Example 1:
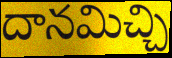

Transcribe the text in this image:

దానమిచ్చి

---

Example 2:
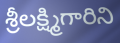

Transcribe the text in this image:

శ్రీలక్ష్మిగారిని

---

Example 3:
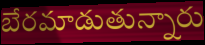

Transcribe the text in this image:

బేరమాడుతున్నారు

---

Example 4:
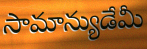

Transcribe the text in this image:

సామాన్యుడేమీ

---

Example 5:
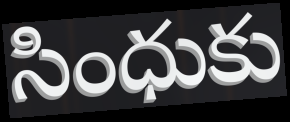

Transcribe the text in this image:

సింధుకు